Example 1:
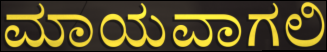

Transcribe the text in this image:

ಮಾಯವಾಗಲಿ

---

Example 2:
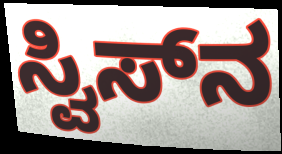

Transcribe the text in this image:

ಸ್ವಿಸ್‌ನ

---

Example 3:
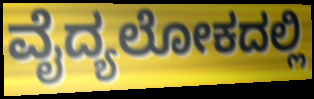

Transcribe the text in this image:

ವೈದ್ಯಲೋಕದಲ್ಲಿ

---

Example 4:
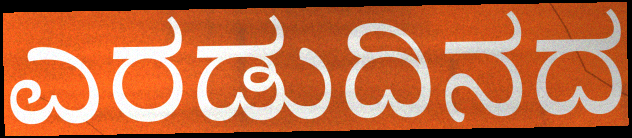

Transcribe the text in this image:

ಎರಡುದಿನದ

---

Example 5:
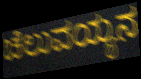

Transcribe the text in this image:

ಚೆಲುವಯ್ಯನ